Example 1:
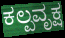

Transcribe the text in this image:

ಕಲ್ಪವೃಕ್ಷ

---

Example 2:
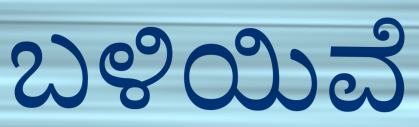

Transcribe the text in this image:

ಬಳಿಯಿವೆ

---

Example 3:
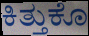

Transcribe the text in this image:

ಕಿತ್ತುಕೊ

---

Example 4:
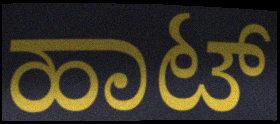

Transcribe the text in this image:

ಹಾಟ್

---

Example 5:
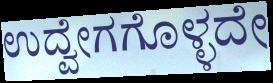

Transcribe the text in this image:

ಉದ್ವೇಗಗೊಳ್ಳದೇ